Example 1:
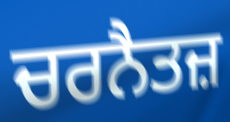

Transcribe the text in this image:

ਚਰਨੈਤਜ਼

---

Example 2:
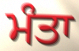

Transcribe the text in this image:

ਮੰਤਾ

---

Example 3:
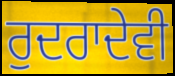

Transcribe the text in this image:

ਰੁਦਰਾਦੇਵੀ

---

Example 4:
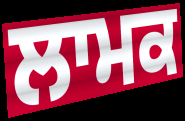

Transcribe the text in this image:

ਲਾਮਕ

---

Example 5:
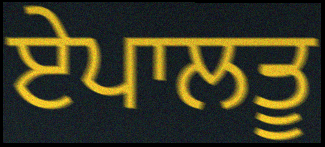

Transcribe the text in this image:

ਏਪਾਲਤੂ